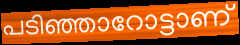
പടിഞ്ഞാറോട്ടാണ്